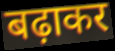
बढ़ाकर